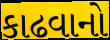
કાઢવાનો